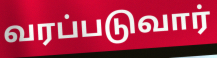
வரப்படுவார்